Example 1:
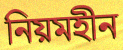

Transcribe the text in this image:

নিয়মহীন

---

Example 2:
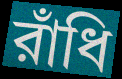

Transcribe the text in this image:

রাঁধি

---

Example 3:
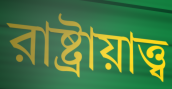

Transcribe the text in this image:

রাষ্ট্রায়াত্ত্ব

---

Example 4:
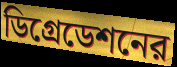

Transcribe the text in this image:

ডিগ্রেডেশনের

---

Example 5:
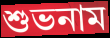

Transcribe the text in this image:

শুভনাম